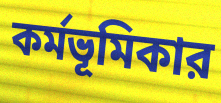
কর্মভূমিকার